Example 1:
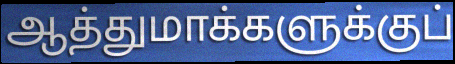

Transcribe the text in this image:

ஆத்துமாக்களுக்குப்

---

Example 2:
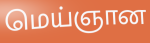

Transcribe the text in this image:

மெய்ஞான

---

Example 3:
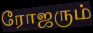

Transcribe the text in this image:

ரோஜரும்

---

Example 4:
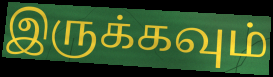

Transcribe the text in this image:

இருக்கவும்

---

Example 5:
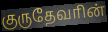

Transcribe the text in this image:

குருதேவரின்